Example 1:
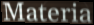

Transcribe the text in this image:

Materia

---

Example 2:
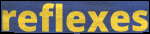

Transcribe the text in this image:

reflexes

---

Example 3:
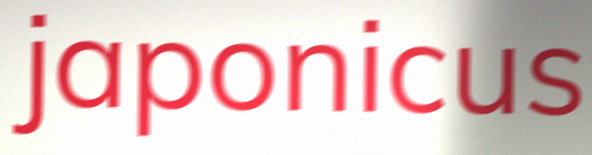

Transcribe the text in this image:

japonicus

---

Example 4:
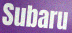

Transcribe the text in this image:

Subaru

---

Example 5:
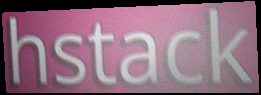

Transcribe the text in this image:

hstack